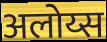
अलोय्स